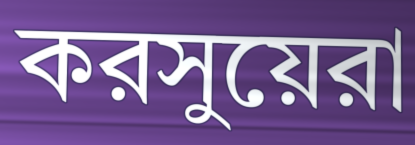
করসুয়েরা